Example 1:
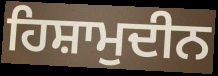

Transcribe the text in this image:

ਹਿਸ਼ਾਮੁਦੀਨ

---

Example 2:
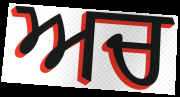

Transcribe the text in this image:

ਅਚ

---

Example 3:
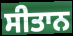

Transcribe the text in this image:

ਸੀਤਾਨ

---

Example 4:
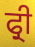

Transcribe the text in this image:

ਫ੍ਰੀ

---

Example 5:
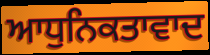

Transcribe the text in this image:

ਆਧੁਨਿਕਤਾਵਾਦ